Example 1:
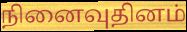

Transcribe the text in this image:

நினைவுதினம்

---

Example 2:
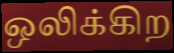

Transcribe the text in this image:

ஒலிக்கிற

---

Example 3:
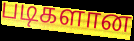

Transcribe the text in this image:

படிகளான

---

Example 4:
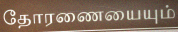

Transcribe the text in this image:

தோரணையையும்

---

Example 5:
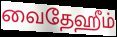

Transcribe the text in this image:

வைதேஹீம்